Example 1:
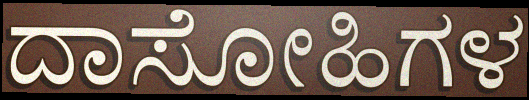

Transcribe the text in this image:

ದಾಸೋಹಿಗಳ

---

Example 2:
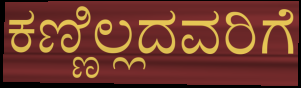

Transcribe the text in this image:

ಕಣ್ಣಿಲ್ಲದವರಿಗೆ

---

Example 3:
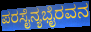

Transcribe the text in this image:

ಪರಸೈನ್ಯಭೈರವನ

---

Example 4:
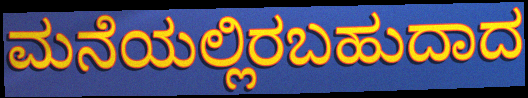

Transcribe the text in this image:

ಮನೆಯಲ್ಲಿರಬಹುದಾದ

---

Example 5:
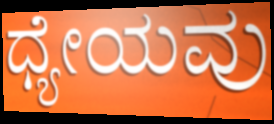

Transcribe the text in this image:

ಧ್ಯೇಯವು